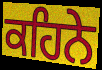
ਕਹਿਨੇ